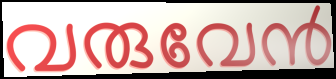
വരുവേൻ